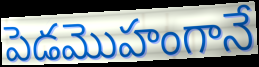
పెడమొహంగానే